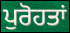
ਪੁਰੋਹਤਾਂ